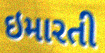
ઇમારતી